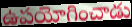
ఉపయోగించాడు